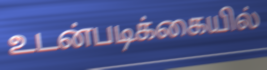
உடன்படிக்கையில்